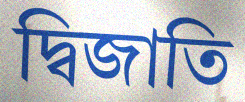
দ্বিজাতি